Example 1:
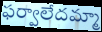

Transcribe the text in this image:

ఫర్వాలేదమ్మా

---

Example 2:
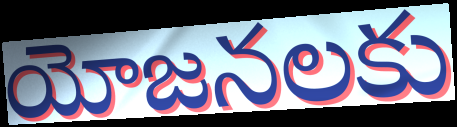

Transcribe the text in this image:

యోజనలకు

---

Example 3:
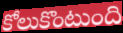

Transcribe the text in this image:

కోలుకొంటుంది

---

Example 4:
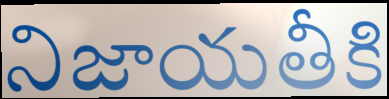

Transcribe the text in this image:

నిజాయతీకి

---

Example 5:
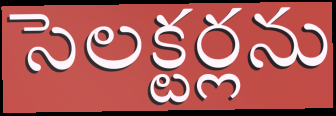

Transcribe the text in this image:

సెలక్టర్లను